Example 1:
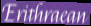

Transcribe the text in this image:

Erithraean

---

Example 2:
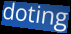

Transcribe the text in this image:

doting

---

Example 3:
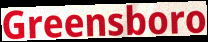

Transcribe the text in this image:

Greensboro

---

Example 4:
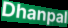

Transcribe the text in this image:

Dhanpal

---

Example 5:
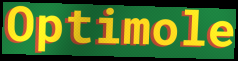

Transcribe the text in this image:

Optimole